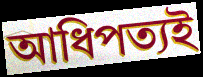
আধিপত্যই